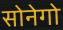
सोनेगो